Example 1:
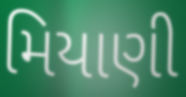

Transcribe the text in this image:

મિયાણી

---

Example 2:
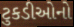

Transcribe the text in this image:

ટુકડીઓનો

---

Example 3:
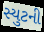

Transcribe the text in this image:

સ્યુટની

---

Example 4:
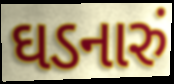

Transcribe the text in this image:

ઘડનારું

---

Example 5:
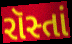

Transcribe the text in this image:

રૉસ્તાં